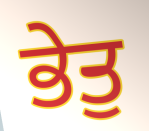
ਭੇਤੁ